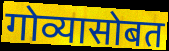
गोव्यासोबत